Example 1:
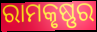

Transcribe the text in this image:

ରାମକୃଷ୍ଣର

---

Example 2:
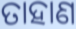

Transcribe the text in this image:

ତାହାଣ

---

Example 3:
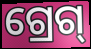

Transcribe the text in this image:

ଗ୍ରେଗ୍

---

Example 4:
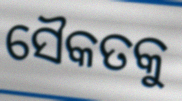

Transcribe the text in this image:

ସୈକତକୁ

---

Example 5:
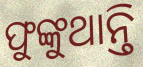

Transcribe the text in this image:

ଫୁଙ୍କୁଥାନ୍ତି